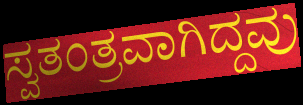
ಸ್ವತಂತ್ರವಾಗಿದ್ದವು